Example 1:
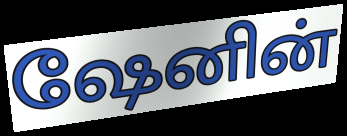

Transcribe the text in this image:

ஷேனின்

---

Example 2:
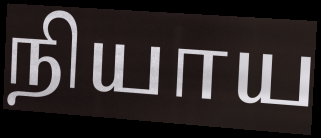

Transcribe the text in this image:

நியாய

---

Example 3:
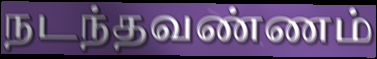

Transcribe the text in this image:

நடந்தவண்ணம்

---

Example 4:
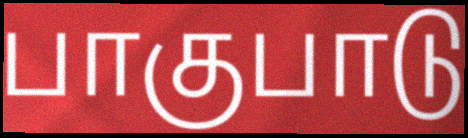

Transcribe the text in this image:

பாகுபாடு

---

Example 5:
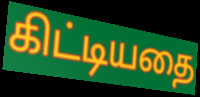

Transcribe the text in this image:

கிட்டியதை